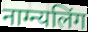
नाग्न्यलिंग